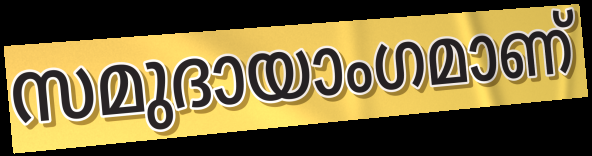
സമുദായാംഗമാണ്